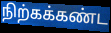
நிற்கக்கண்ட